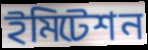
ইমিটেশন